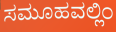
ಸಮೂಹವಲ್ಲಿಂ